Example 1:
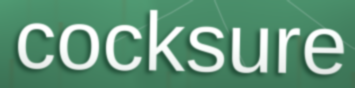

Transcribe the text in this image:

cocksure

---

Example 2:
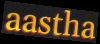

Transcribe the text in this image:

aastha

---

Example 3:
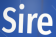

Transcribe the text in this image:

Sire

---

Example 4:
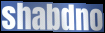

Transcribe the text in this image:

shabdno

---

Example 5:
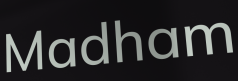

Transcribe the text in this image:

Madham